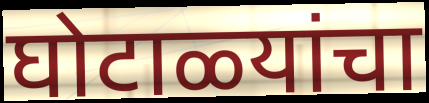
घोटाळ्यांचा